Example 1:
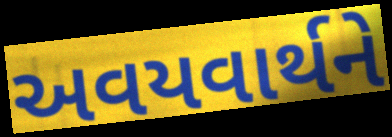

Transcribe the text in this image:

અવયવાર્થને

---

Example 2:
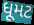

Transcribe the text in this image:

ધૂમટ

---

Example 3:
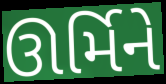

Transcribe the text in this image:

ઊર્મિને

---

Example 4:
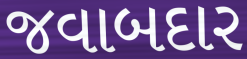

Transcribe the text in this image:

જવાબદાર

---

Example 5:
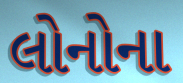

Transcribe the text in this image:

લોનોના